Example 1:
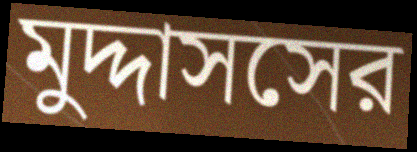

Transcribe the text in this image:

মুদ্দাসসের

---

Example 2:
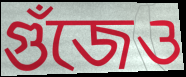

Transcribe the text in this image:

গুঁজেও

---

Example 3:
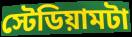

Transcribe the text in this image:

স্টেডিয়ামটা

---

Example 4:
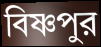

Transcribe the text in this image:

বিষ্ণপুর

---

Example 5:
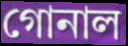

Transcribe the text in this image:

গোনাল